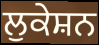
ਲੁਕੇਸ਼ਨ